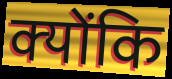
क्‍योंकि